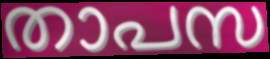
താപസ